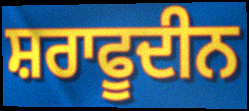
ਸ਼ਰਾਫੂਦੀਨ